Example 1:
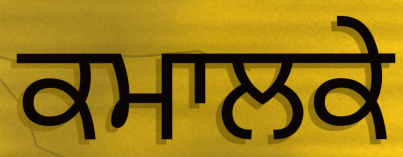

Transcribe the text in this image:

ਕਮਾਲਕੇ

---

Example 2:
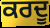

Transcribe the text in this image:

ਕਰਦੂ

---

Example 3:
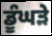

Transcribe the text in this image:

ਡੂੰਘੜੇ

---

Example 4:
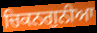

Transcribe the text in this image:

ਚਿਕਨਗੁਨੀਆ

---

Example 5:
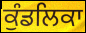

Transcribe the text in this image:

ਕੁੰਡਲਿਕਾ